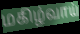
மகிழ்வாய்